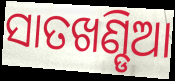
ସାତଖଣ୍ଡିଆ